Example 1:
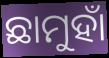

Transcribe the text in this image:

ଛାମୁହାଁ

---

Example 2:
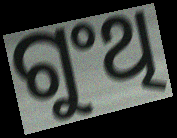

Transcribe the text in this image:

ଗୁଂଥି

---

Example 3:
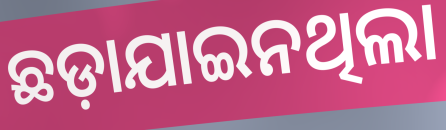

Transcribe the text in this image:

ଛଡ଼ାଯାଇନଥିଲା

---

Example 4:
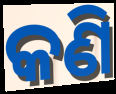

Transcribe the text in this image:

କଣି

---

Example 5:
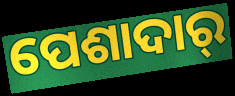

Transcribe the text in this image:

ପେଶାଦାର୍